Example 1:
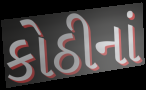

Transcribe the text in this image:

કોઠીનાં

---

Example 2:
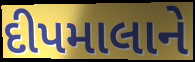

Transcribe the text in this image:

દીપમાલાને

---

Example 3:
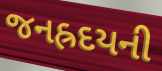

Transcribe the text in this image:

જનહ્રદયની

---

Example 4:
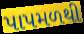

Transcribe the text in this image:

પાપમળથી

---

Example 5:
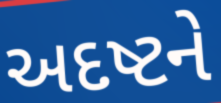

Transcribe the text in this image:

અદષ્ટને